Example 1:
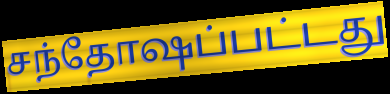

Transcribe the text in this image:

சந்தோஷப்பட்டது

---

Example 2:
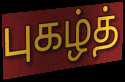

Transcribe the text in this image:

புகழ்த்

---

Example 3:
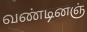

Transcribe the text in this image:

வண்டினஞ்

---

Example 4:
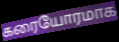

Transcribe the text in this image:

கரையோரமாக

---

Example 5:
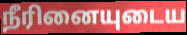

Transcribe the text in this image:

நீரினையுடைய